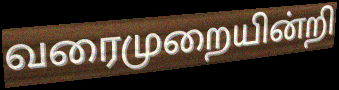
வரைமுறையின்றி